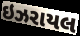
ઇઝરાયલ